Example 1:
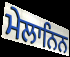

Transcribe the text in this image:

ਮੇਲਾਨਿਨ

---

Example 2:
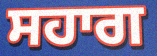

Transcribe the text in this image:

ਸਹਾਗ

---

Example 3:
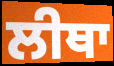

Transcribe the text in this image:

ਲੀਥਾ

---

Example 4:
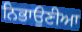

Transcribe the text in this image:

ਨਿਭਾਉਣੀਆ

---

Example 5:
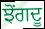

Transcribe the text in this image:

ਝੋਂਗਦੂ